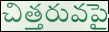
చిత్తరువపై